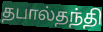
தபால்தந்தி